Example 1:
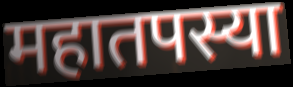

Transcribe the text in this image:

महातपस्या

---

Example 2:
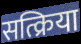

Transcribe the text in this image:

सत्क्रिया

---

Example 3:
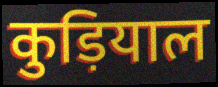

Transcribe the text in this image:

कुड़ियाल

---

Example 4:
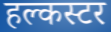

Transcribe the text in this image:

हल्कस्टर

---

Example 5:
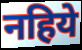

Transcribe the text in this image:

नहिये